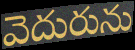
వెదురును